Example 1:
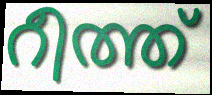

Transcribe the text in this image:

റീത്ത്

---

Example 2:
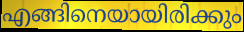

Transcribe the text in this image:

എങ്ങിനെയായിരിക്കും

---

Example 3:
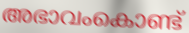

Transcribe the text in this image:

അഭാവംകൊണ്ട്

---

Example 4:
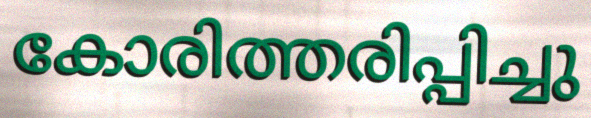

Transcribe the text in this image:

കോരിത്തരിപ്പിച്ചു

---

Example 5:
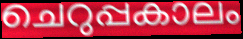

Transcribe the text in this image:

ചെറുപ്പകാലം